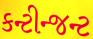
કન્ટીન્જન્ટ